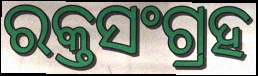
ରକ୍ତସଂଗ୍ରହ